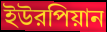
ইউরপিয়ান